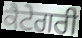
ਕੈਟੇਗਰੀ